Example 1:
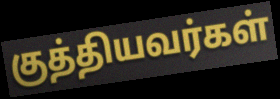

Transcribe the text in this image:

குத்தியவர்கள்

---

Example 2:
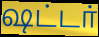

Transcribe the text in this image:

ஷட்டர்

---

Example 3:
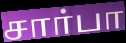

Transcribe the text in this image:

சார்பா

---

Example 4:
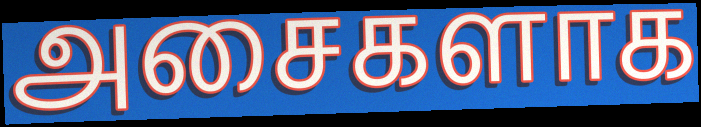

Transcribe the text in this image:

அசைகளாக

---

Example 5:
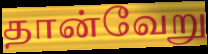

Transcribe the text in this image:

தான்வேறு